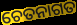
ଚେତନାଗତ